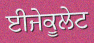
ਈਜੇਕੂਲੇਟ